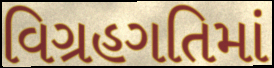
વિગ્રહગતિમાં